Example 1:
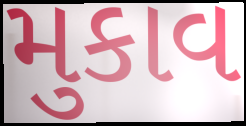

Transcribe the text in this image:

મુકાવ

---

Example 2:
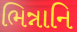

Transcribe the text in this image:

ભિન્નાનિ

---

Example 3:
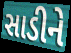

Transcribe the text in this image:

સાડીને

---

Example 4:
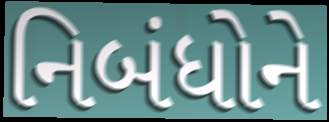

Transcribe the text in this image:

નિબંધોને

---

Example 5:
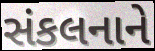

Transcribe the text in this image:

સંકલનાને